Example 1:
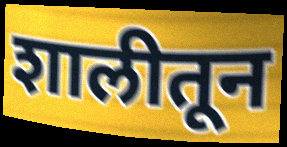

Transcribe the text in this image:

शालीतून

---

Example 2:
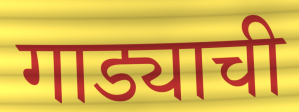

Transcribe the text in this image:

गाड्याची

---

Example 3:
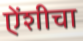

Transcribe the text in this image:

ऐंशीचा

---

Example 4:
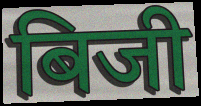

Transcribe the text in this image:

बिजी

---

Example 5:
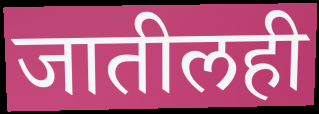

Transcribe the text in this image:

जातीलही